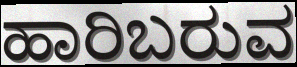
ಹಾರಿಬರುವ